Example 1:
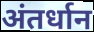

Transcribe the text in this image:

अंतर्धान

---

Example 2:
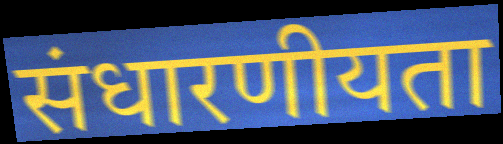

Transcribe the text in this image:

संधारणीयता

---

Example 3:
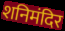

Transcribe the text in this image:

शनिमंदिर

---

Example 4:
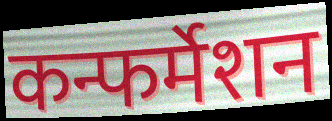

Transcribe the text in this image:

कन्फर्मेशन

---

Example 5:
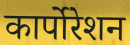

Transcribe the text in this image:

कार्पोरेशन